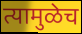
त्यामुळेच